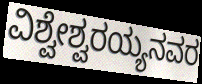
ವಿಶ್ವೇಶ್ವರಯ್ಯನವರ